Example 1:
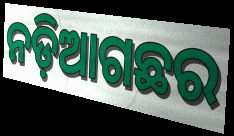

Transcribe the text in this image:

ନଡ଼ିଆଗଛର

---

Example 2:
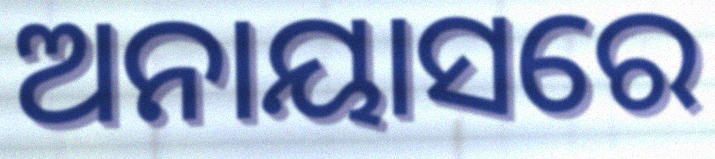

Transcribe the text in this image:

ଅନାୟାସରେ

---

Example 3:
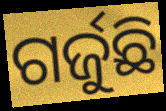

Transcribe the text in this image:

ଗର୍ଜୁଛି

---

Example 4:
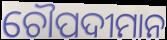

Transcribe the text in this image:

ଚୌପଦୀମାନ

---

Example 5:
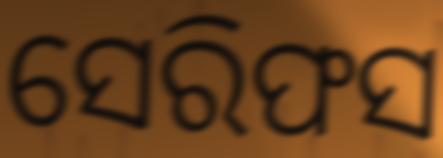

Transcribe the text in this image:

ସେରିଫସ